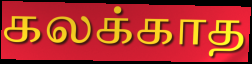
கலக்காத